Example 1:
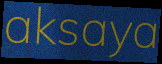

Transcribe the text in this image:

aksaya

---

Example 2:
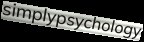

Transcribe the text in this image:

simplypsychology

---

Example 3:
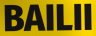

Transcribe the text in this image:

BAILII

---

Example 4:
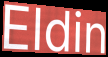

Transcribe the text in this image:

Eldin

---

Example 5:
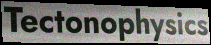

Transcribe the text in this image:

Tectonophysics